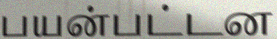
பயன்பட்டன